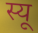
स्यू